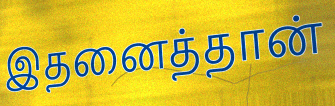
இதனைத்தான்